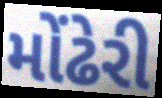
મોંઢેરી